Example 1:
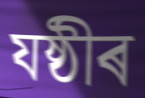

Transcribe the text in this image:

যষ্ঠীৰ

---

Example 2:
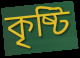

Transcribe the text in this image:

কৃষ্টি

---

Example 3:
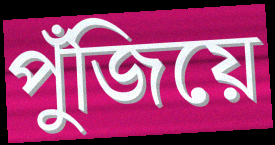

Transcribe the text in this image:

পুঁজিয়ে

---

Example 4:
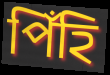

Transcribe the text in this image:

পিঁহি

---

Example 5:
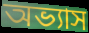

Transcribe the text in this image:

অভ্যাস